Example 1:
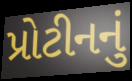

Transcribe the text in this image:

પ્રોટીનનું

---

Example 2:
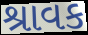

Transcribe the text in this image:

શ્રાવક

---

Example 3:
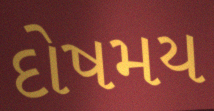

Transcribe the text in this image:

દોષમય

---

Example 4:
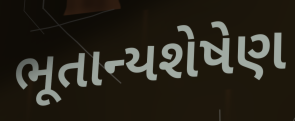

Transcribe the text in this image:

ભૂતાન્યશેષેણ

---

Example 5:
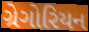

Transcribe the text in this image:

ગ્રેગોરિયન